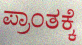
ಪ್ರಾಂತಕ್ಕೆ